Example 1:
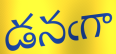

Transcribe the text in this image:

డనఁగా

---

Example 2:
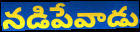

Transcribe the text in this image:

నడిపేవాడు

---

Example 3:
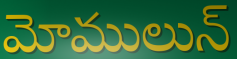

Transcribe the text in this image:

మోములున్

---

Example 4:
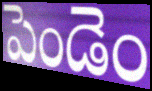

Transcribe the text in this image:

పెండెం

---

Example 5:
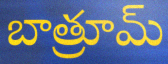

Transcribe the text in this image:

బాత్రూమ్